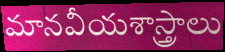
మానవీయశాస్త్రాలు